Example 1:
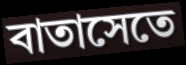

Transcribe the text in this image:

বাতাসেতে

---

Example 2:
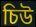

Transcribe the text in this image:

চিউ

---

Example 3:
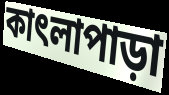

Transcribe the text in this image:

কাৎলাপাড়া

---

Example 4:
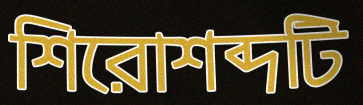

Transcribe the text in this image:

শিরোশব্দটি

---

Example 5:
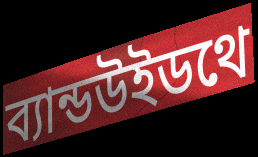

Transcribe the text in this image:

ব্যান্ডউইডথে